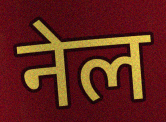
नेल